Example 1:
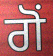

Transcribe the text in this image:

ਗੋਂ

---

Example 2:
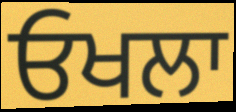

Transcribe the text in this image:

ਓਖਲਾ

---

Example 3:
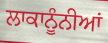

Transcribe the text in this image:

ਲਾਕਾਨੂੰਨੀਆਂ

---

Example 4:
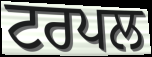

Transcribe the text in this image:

ਟਰਪਲ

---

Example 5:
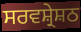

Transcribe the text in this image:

ਸਰਵਸ਼੍ਰੇਸ਼ਠ